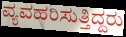
ವ್ಯವಹರಿಸುತ್ತಿದ್ದರು